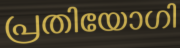
പ്രതിയോഗി